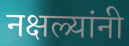
नक्षल्यांनी